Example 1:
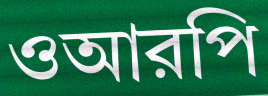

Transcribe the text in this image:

ওআরপি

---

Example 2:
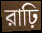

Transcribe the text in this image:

রাঢ়ি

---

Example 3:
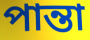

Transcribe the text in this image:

পান্তা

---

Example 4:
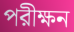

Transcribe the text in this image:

পরীক্ষন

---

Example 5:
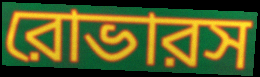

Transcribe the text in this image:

রোভারস